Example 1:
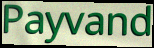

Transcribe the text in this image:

Payvand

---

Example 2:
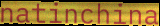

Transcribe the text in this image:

natinchina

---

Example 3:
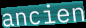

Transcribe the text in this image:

ancien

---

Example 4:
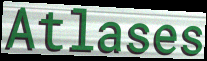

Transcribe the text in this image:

Atlases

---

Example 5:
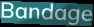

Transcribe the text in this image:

Bandage